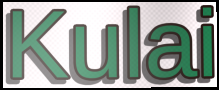
Kulai